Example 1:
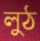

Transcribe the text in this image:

লুঠ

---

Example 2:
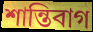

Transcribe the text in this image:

শান্তিবাগ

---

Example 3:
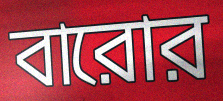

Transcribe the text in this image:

বারোর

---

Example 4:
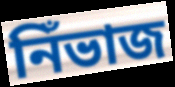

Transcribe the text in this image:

নিঁভাজ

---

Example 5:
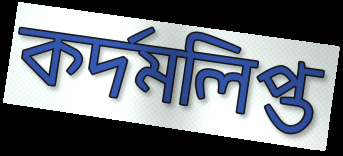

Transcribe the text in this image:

কর্দমলিপ্ত